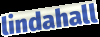
lindahall